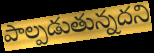
పాల్పడుతున్నదని